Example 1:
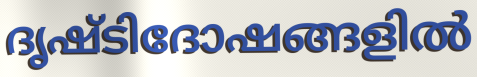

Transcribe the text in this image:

ദൃഷ്ടിദോഷങ്ങളിൽ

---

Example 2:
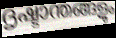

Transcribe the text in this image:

ദൃഷ്ടാന്തങ്ങളും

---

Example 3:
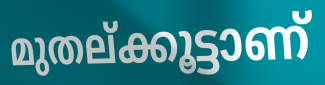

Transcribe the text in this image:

മുതല്ക്കൂട്ടാണ്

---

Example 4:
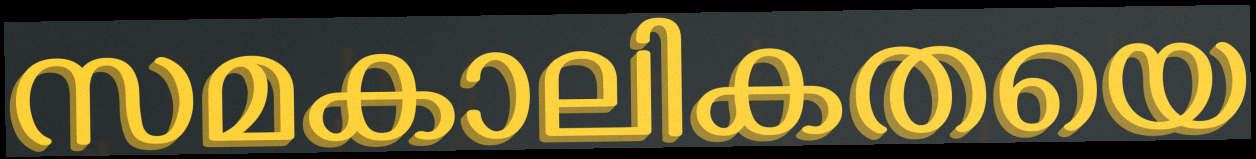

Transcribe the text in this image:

സമകാലികതയെ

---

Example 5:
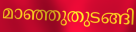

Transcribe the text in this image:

മാഞ്ഞുതുടങ്ങി